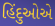
હિંદુઓએ